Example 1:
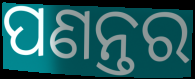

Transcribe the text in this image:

ପଣନ୍ତର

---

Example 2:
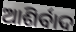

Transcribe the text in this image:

ଆଶିର୍ବାଦ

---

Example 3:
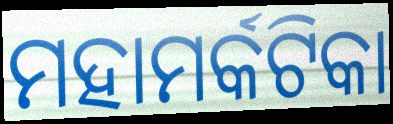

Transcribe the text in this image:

ମହାମର୍କଟିକା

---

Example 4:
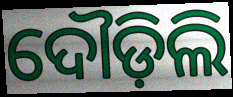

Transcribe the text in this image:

ଦୌଡ଼ିଲି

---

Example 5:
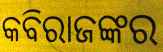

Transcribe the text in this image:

କବିରାଜଙ୍କର